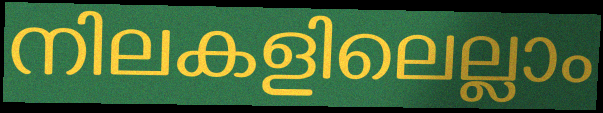
നിലകളിലെല്ലാം